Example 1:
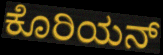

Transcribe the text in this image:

ಕೊರಿಯನ್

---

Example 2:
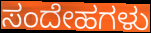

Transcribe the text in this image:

ಸಂದೇಹಗಳು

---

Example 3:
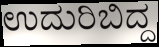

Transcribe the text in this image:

ಉದುರಿಬಿದ್ದ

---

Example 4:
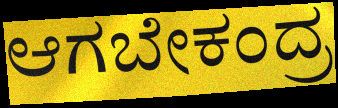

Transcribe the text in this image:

ಆಗಬೇಕಂದ್ರ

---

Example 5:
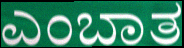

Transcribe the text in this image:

ಎಂಬಾತ